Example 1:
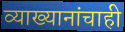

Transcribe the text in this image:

व्याख्यानांचाही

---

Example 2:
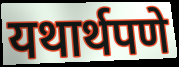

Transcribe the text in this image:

यथार्थपणे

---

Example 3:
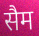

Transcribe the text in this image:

सैम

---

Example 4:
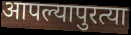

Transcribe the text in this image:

आपल्यापुरत्या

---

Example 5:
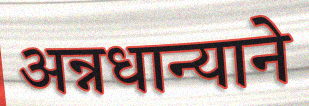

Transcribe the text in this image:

अन्नधान्याने